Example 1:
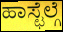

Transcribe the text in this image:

ಹಾಸ್ಟೆಲ್ಗೆ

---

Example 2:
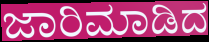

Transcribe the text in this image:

ಜಾರಿಮಾಡಿದ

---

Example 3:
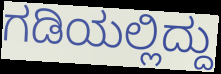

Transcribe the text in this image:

ಗಡಿಯಲ್ಲಿದ್ದು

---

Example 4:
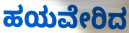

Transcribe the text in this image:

ಹಯವೇರಿದ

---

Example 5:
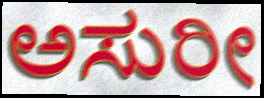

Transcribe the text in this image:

ಅಸುರೀ